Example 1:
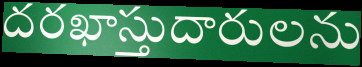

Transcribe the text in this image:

దరఖాస్తుదారులను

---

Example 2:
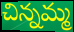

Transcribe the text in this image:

చిన్నమ్మ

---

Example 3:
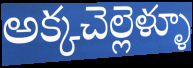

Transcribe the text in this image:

అక్కచెల్లెళ్ళూ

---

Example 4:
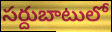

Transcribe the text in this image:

సర్దుబాటులో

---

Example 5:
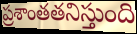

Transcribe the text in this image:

ప్రశాంతతనిస్తుంది